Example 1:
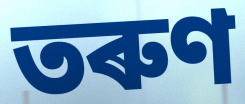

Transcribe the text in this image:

তৰুণ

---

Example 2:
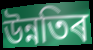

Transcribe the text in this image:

উন্নতিৰ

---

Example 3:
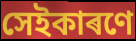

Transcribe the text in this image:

সেইকাৰণে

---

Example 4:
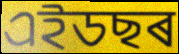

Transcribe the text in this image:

এইডছৰ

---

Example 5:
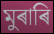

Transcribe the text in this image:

মুৰাৰি